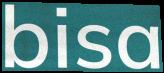
bisa